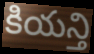
కియన్తి